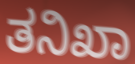
ತನಿಖಾ